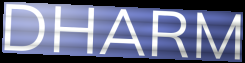
DHARM